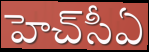
హెచ్‌సీఏ